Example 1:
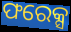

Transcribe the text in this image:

ଫରେକ୍ସ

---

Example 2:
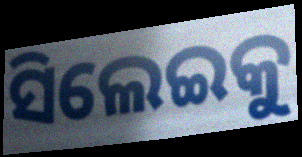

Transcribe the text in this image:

ସିଲେଇକୁ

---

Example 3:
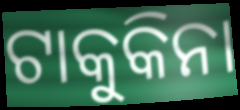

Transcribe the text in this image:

ଟାକୁକିନା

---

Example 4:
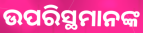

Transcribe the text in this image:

ଉପରିସ୍ଥମାନଙ୍କ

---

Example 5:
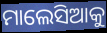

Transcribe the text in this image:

ମାଲେସିଆକୁ